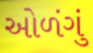
ઓળંગું